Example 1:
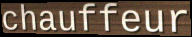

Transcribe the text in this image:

chauffeur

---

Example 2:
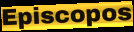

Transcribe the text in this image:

Episcopos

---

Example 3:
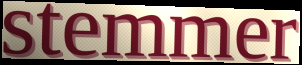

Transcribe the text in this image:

stemmer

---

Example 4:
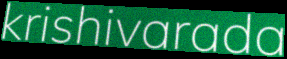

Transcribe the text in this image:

krishivarada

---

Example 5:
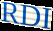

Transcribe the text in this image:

RDI